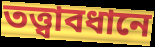
তত্ত্বাবধানে